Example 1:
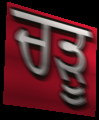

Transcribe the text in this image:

ਚੜੂ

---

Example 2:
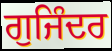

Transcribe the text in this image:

ਗੁਜਿੰਦਰ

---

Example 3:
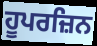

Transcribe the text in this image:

ਹੂਪਰਜ਼ਿਨ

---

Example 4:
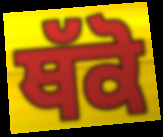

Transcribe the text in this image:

ਥੱਕੋ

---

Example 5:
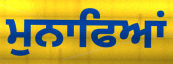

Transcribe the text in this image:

ਮੁਨਾਫਿਆਂ